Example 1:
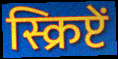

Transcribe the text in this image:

स्क्रिप्टें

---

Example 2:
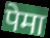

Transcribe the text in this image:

पेमा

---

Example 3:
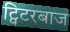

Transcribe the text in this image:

ट्विटरबाज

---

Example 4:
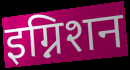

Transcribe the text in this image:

इग्निशन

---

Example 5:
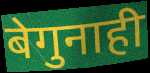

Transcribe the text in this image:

बेगुनाही